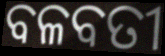
ବଳବତୀ